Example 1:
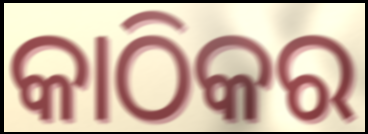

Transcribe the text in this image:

କାଠିକର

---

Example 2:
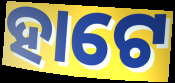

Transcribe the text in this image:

ହାଟେ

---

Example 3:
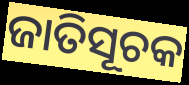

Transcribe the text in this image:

ଜାତିସୂଚକ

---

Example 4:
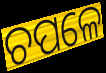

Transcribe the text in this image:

ଚପଳେ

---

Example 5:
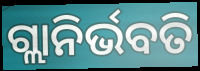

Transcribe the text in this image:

ଗ୍ଲାନିର୍ଭବତି